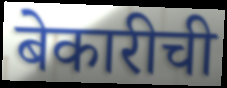
बेकारीची